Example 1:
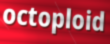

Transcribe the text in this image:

octoploid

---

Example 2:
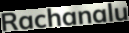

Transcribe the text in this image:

Rachanalu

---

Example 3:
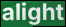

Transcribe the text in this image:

alight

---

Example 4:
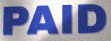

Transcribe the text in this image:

PAID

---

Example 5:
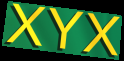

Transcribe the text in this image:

XYX